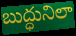
బుద్ధునిలా